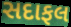
સદાફલ